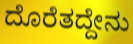
ದೊರೆತದ್ದೇನು